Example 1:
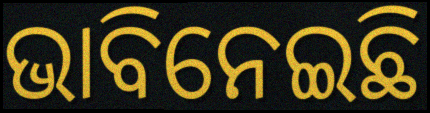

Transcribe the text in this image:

ଭାବିନେଇଛି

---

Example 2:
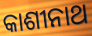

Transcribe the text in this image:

କାଶୀନାଥ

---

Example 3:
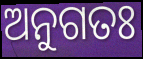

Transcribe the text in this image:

ଅନୁଗତଃ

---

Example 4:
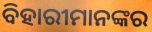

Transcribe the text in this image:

ବିହାରୀମାନଙ୍କର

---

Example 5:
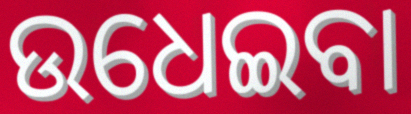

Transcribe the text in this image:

ଉଧେଇବା